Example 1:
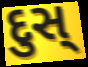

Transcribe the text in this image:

દુસ્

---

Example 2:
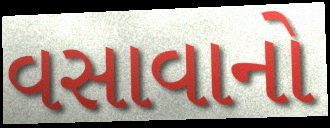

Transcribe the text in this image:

વસાવાનો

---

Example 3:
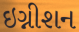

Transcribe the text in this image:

ઇગ્નીશન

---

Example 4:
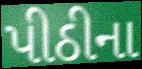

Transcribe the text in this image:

પીઠીના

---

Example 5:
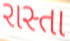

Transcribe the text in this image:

રાસ્તા